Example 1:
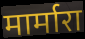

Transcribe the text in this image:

मार्मारा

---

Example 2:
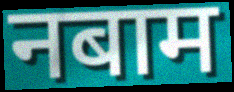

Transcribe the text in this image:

नबाम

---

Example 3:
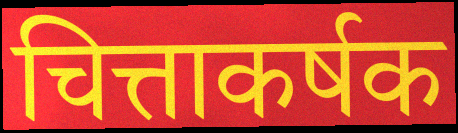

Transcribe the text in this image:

चित्ताकर्षक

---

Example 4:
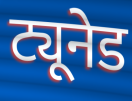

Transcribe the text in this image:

ट्यूनेड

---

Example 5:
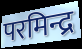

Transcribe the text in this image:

परमिन्द्र